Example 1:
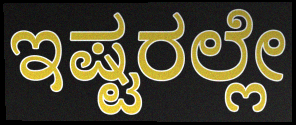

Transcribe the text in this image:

ಇಷ್ಟರಲ್ಲೇ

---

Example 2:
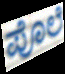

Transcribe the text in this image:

ಪೊಲೆ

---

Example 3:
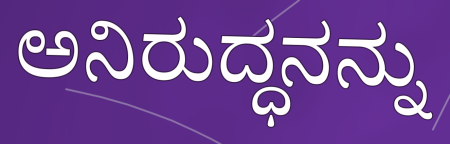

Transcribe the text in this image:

ಅನಿರುದ್ಧನನ್ನು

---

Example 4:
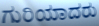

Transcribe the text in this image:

ಗುರಿಯಾದರು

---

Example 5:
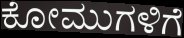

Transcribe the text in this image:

ಕೋಮುಗಳಿಗೆ